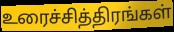
உரைச்சித்திரங்கள்